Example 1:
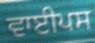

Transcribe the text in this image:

ਵਾਈਪਸ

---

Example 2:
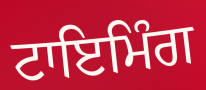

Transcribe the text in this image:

ਟਾਇਮਿੰਗ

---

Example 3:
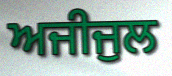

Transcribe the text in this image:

ਅਜੀਜੁਲ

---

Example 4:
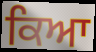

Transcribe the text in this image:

ਕਿਆ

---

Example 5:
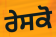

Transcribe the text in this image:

ਰੇਸਕੋ